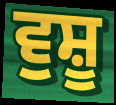
ਵੁਸ਼ੂ